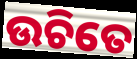
ଉଚିତେ